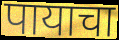
पायाचा